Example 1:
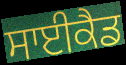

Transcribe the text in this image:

ਸਾਈਕੈਡ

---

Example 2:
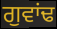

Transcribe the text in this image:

ਗੁਵਾਂਢ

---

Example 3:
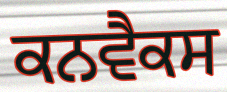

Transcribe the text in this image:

ਕਨਵੈਕਸ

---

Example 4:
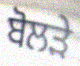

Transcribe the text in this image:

ਬੋਲੜੇ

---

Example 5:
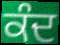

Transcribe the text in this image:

ਕੰਦ